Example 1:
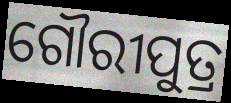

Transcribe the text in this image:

ଗୌରୀପୁତ୍ର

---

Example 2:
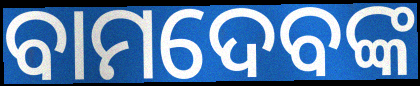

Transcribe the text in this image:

ବାମଦେବଙ୍କ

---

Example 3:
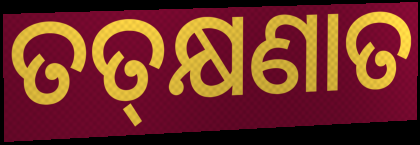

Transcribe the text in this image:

ତତ୍‌କ୍ଷଣାତ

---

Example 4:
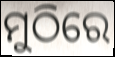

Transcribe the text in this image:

ମୁଠିରେ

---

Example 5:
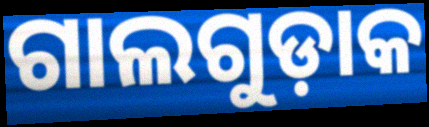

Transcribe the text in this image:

ଗାଲଗୁଡ଼ାକ